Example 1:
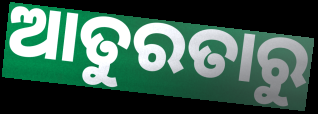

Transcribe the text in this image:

ଆତୁରତାରୁ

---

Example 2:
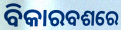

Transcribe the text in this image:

ବିକାରବଶରେ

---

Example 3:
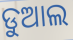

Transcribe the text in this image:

ଡୁଆଲ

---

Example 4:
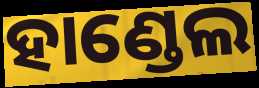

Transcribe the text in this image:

ହାଣ୍ଡେଲ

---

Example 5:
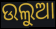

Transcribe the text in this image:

ଉଲୁଆ